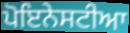
ਪੋਇਨੇਸਟੀਆ